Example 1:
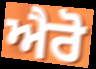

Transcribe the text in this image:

ਐਰੋ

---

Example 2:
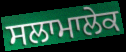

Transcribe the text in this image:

ਸਲਾਮਾਲੇਕ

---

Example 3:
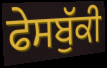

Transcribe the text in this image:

ਫੇਸਬੁੱਕੀ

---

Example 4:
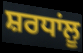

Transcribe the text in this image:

ਸ਼ਰਧਾਂਲੂ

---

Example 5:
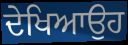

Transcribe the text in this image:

ਦੇਖਿਆਉਹ